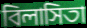
বিলাসিতা